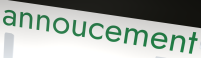
annoucement